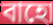
বাহো